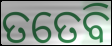
ତତେବି